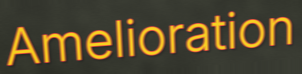
Amelioration